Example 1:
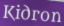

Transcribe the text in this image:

Kidron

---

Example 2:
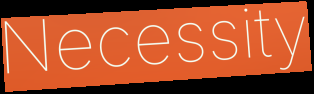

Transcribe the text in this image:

Necessity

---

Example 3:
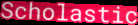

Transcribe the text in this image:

Scholastic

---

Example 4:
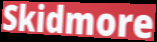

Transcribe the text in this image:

Skidmore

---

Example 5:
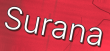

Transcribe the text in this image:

Surana